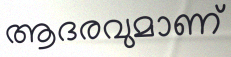
ആദരവുമാണ്